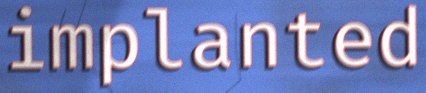
implanted